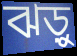
ঝড়ু